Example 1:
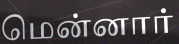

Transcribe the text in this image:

மென்னார்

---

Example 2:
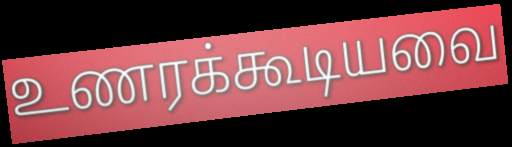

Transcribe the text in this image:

உணரக்கூடியவை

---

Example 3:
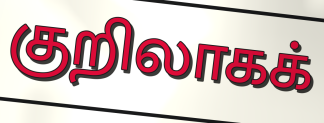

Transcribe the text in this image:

குறிலாகக்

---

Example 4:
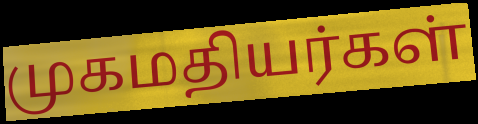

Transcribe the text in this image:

முகமதியர்கள்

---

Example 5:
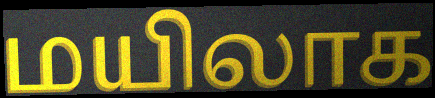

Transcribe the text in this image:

மயிலாக